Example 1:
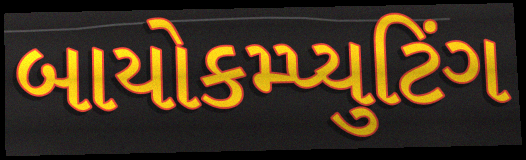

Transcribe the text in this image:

બાયોકમ્પ્યુટિંગ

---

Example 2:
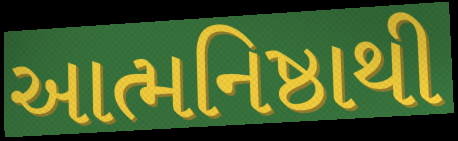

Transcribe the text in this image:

આત્મનિષ્ઠાથી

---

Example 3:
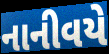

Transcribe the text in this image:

નાનીવયે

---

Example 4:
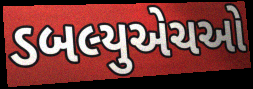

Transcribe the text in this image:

ડબલ્યુએચઓ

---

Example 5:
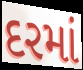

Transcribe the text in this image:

દરમાં